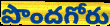
పొందగోరు